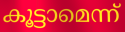
കൂട്ടാമെന്ന്